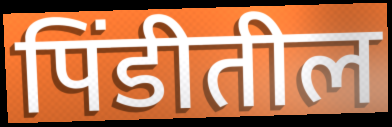
पिंडीतील